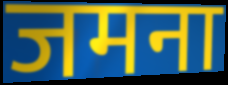
जमना